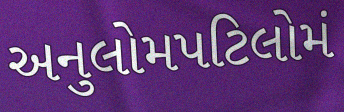
અનુલોમપટિલોમં